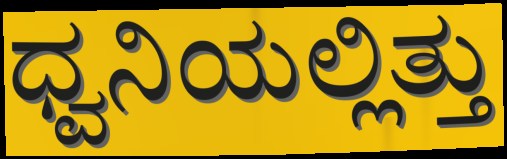
ಧ್ವನಿಯಲ್ಲಿತ್ತು